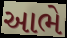
આભે